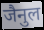
जैनुल